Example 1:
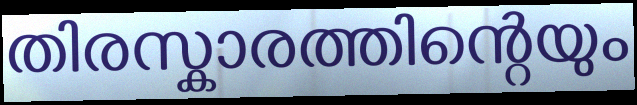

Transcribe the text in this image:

തിരസ്കാരത്തിന്റെയും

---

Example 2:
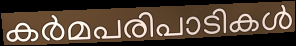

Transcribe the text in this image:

കർമപരിപാടികൾ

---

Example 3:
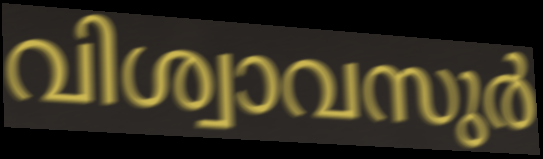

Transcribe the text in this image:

വിശ്വാവസുർ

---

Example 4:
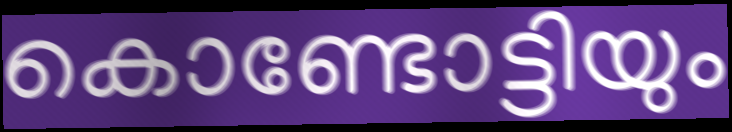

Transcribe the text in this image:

കൊണ്ടോട്ടിയും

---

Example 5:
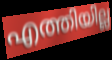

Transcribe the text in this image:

എത്തിയില്ല